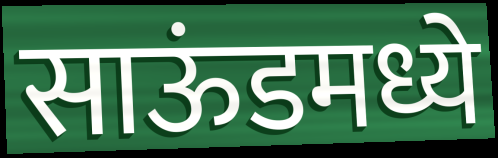
साऊंडमध्ये